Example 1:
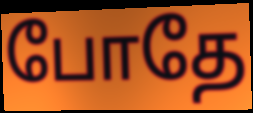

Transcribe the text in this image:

போதே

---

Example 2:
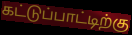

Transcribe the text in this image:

கட்டுப்பாட்டிற்கு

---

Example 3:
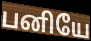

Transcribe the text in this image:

பனியே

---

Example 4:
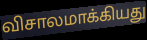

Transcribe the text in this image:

விசாலமாக்கியது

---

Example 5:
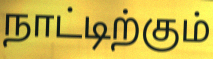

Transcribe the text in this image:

நாட்டிற்கும்